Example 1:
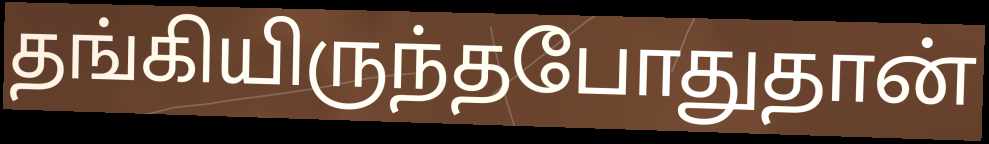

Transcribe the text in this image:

தங்கியிருந்தபோதுதான்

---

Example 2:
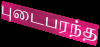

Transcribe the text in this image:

புடைபரந்த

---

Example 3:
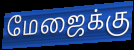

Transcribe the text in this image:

மேஜைக்கு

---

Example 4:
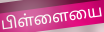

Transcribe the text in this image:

பிள்ளையை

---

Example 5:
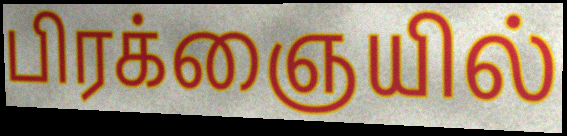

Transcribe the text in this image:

பிரக்ஞையில்